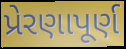
પ્રેરણાપૂર્ણ